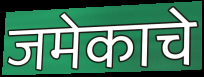
जमेकाचे